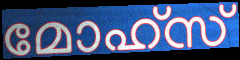
മോഹ്സ്